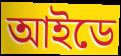
আইডে